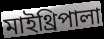
মাইথ্রিপালা